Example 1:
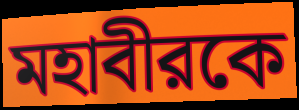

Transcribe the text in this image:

মহাবীরকে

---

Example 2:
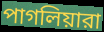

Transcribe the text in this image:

পাগলিয়ারা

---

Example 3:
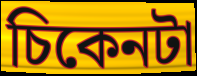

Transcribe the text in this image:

চিকেনটা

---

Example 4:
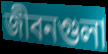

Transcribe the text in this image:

জীবনগুলা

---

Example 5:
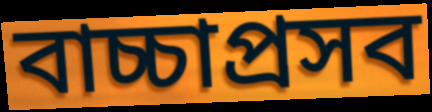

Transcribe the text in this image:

বাচ্চাপ্রসব